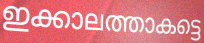
ഇക്കാലത്താകട്ടെ